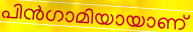
പിൻഗാമിയായാണ്